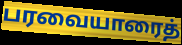
பரவையாரைத்